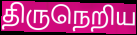
திருநெறிய